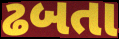
ઢબતા